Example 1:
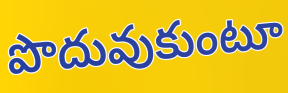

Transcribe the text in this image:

పొదువుకుంటూ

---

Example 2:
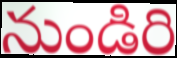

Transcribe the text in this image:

నుండిరి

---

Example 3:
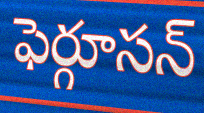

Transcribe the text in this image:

ఫెర్గూసన్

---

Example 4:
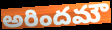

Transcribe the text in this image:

అరిందమౌ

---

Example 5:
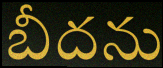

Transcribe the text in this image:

బీదను